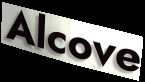
Alcove